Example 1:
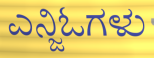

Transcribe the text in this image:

ಎನ್ಜಿಓಗಳು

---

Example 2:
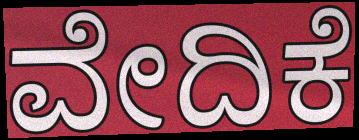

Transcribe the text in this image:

ವೇದಿಕೆ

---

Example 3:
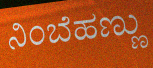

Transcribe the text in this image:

ನಿಂಬೆಹಣ್ಣು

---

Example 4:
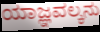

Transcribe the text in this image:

ಯಾಜ್ಞವಲ್ಕನು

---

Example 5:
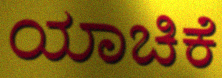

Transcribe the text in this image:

ಯಾಚಿಕೆ